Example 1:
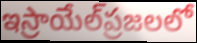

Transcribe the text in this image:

ఇస్రాయేల్‌ప్రజలలో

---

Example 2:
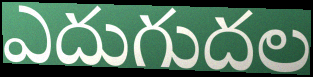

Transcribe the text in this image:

ఎదుగుదల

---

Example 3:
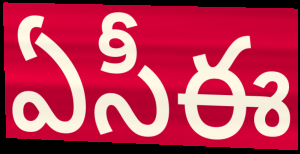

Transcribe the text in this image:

ఏసీఈ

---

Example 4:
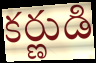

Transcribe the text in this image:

కర్ణుడి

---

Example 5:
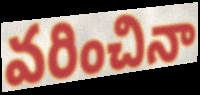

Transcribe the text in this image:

వరించినా